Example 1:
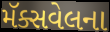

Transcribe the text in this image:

મૅક્સવેલના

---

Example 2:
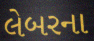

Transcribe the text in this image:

લેબરના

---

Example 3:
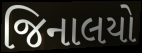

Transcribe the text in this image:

જિનાલયો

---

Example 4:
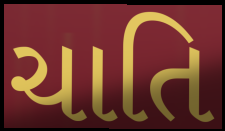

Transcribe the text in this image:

ચાતિ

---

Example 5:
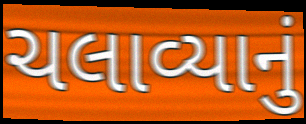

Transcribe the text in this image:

ચલાવ્યાનું